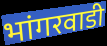
भांगरवाडी